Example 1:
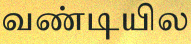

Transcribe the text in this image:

வண்டியில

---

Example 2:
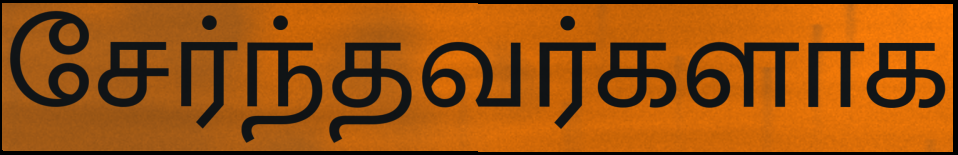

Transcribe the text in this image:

சேர்ந்தவர்களாக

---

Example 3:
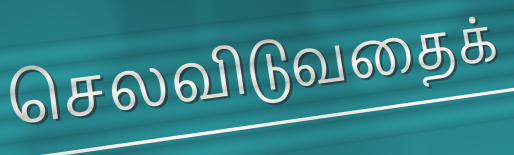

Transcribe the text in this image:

செலவிடுவதைக்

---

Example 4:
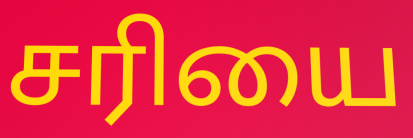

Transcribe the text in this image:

சரியை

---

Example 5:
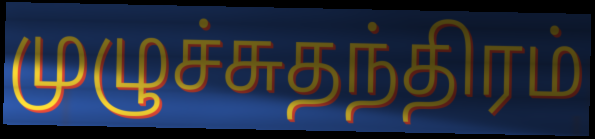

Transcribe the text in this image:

முழுச்சுதந்திரம்